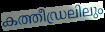
കത്തീഡ്രലിലും